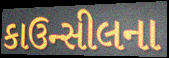
કાઉન્સીલના